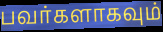
பவர்களாகவும்